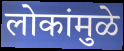
लोकांमुळे